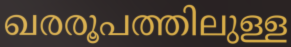
ഖരരൂപത്തിലുള്ള